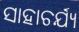
ସାହାଚର୍ଯ୍ୟ